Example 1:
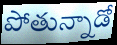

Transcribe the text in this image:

పోతున్నాడో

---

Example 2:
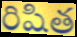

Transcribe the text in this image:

రిషిత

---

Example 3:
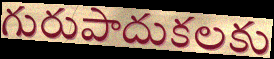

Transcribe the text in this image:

గురుపాదుకలకు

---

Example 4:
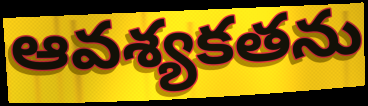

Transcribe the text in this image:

ఆవశ్యకతను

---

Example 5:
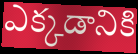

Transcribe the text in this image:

ఎక్కడానికి